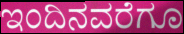
ಇಂದಿನವರೆಗೂ